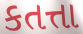
કતત્તા